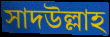
সাদউল্লাহ